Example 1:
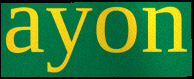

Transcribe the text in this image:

ayon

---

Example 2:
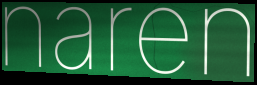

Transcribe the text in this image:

naren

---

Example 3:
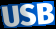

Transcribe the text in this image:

USB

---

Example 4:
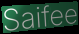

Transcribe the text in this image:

Saifee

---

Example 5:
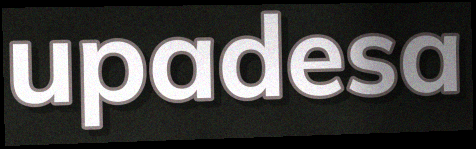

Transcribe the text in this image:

upadesa